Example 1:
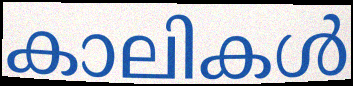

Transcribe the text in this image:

കാലികൾ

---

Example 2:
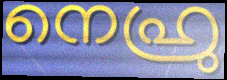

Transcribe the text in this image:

നെഹ്രു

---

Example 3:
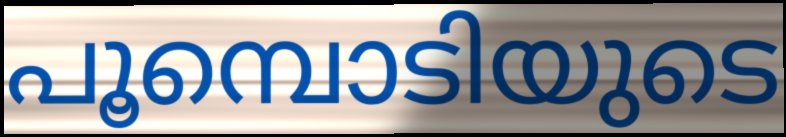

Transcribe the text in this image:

പൂമ്പൊടിയുടെ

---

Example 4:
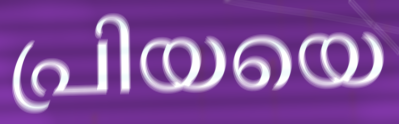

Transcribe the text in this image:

പ്രിയയെ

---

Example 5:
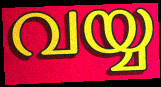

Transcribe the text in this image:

വയ്യ